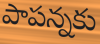
పాపన్నకు